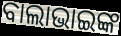
ବାଲାଭାଇଙ୍କ